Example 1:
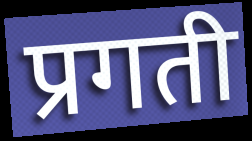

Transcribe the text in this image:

प्रगती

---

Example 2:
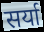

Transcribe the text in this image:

सर्या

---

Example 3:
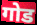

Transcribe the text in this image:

गोड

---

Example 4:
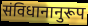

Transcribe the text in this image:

संविधानानुरूप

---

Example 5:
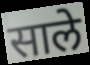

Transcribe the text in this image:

साले